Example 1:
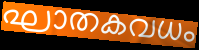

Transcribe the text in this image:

ഘാതകവധം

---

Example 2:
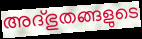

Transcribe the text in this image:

അദ്ഭുതങ്ങളുടെ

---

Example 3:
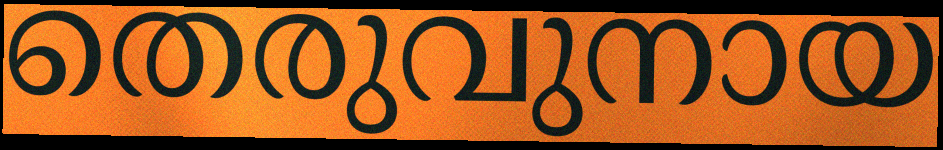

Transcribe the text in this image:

തെരുവുനായ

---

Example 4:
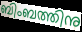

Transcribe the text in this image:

ബിംബത്തിനു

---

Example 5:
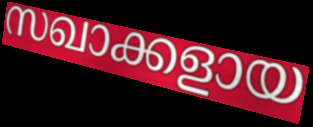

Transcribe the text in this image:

സഖാക്കളായ